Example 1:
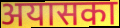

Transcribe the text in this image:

अयासका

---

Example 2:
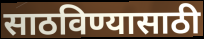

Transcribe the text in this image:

साठविण्यासाठी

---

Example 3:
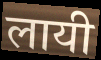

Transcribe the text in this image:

लायी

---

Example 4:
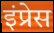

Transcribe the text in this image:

इंप्रेस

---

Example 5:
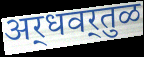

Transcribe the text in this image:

अर्धवर्तुळ